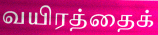
வயிரத்தைக்